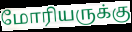
மோரியருக்கு